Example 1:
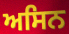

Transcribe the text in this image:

ਅਸਿਨ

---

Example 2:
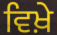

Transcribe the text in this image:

ਵਿਖ਼ੇ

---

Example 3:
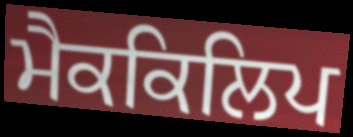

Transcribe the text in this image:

ਮੈਕਕਿਲਿਪ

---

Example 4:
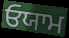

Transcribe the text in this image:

ਓਯਾਮ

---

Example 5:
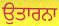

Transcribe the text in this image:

ਉਤਾਰਨਾ